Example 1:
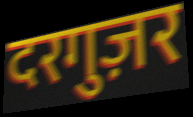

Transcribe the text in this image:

दरगुज़र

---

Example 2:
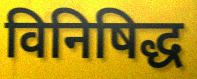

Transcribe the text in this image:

विनिषिद्ध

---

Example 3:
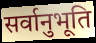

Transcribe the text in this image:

सर्वानुभूति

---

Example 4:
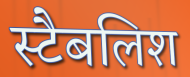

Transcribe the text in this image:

स्टैबलिश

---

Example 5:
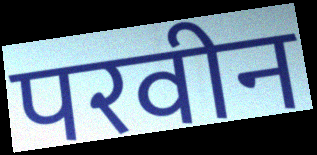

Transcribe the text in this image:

परवीन